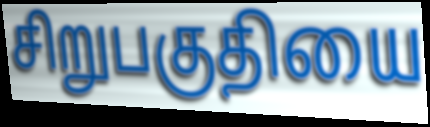
சிறுபகுதியை